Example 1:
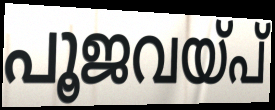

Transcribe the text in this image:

പൂജവയ്പ്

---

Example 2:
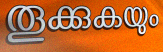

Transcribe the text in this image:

തൂക്കുകയും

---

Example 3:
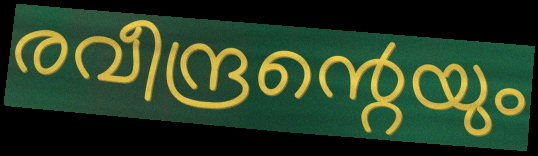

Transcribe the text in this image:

രവീന്ദ്രന്റെയും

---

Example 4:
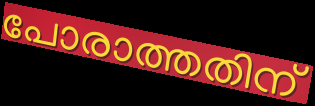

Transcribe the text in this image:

പോരാത്തതിന്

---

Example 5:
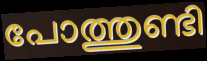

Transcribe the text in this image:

പോത്തുണ്ടി